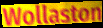
Wollaston